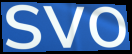
svo